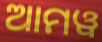
ଆମୱ